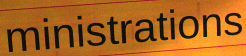
ministrations